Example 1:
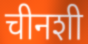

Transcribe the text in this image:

चीनशी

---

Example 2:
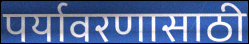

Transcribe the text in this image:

पर्यावरणासाठी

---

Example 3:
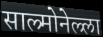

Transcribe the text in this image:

साल्मोनेल्ला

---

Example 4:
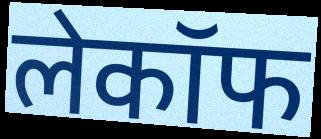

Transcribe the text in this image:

लेकॉफ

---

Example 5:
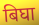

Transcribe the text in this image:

बिघा